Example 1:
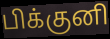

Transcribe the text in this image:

பிக்குனி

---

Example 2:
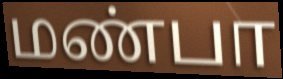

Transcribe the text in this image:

மண்பா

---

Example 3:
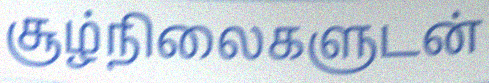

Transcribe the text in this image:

சூழ்நிலைகளுடன்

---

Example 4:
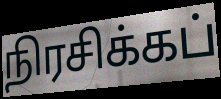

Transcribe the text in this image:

நிரசிக்கப்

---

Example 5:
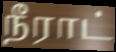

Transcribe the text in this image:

நீராட்